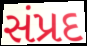
સંપ્રદ